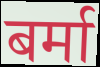
बर्मा